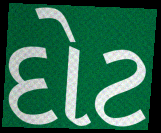
દોટ